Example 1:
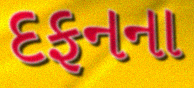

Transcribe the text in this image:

દફનના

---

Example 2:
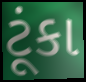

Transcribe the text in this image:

ટૂંકા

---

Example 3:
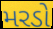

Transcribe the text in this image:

મરડો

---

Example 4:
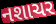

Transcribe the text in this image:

નશાચર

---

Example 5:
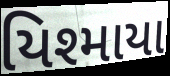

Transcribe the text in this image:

યિશ્માયા